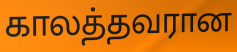
காலத்தவரான